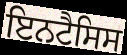
ਇਨਟੈਸਿਸ